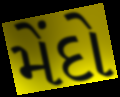
મેંદો